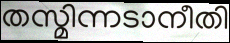
തസ്മിന്നടാനീതി